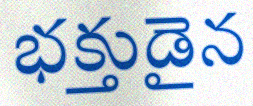
భక్తుడైన